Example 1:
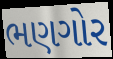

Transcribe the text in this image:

ભણગોર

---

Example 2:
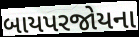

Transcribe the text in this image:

બાયપરજોયના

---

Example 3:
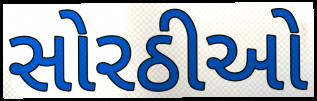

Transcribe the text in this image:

સોરઠીઓ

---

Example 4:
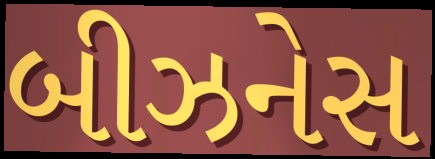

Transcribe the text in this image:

બીઝનેસ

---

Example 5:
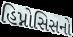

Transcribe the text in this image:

હિપ્નોસિસનો